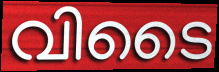
വിടൈ